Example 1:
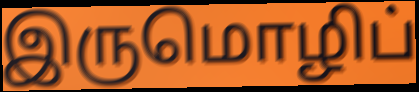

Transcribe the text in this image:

இருமொழிப்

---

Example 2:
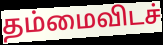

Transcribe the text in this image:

தம்மைவிடச்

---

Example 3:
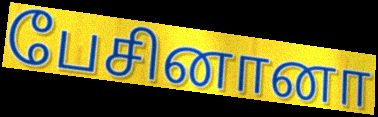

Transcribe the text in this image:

பேசினானா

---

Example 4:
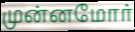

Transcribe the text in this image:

முன்னமோர்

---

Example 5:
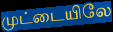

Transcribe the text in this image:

முட்டையிலே